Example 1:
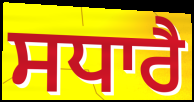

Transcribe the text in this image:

ਸਧਾਰੈ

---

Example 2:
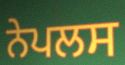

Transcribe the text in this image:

ਨੇਪਲਸ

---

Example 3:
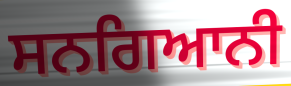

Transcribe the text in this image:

ਸਨਗਿਆਨੀ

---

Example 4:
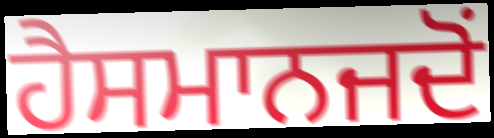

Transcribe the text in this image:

ਹੈਸਮਾਨਜਦੋਂ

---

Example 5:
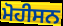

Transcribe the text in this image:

ਮੋਹੀਸਨ